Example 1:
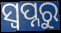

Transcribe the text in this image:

ସ୍ୱପ୍ନରୁ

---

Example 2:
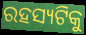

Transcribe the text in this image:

ରହସ୍ୟଟିକୁ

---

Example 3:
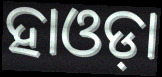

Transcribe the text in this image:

ହାଓଡ଼ା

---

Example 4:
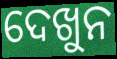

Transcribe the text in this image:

ଦେଖୁନ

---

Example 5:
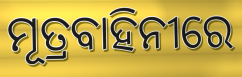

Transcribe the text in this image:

ମୂତ୍ରବାହିନୀରେ